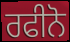
ਰਫੀਨੋ